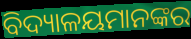
ବିଦ୍ୟାଳୟମାନଙ୍କର